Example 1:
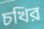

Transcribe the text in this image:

চখির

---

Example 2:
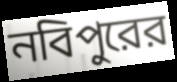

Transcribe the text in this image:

নবিপুরের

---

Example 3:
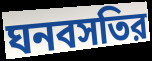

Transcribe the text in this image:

ঘনবসতির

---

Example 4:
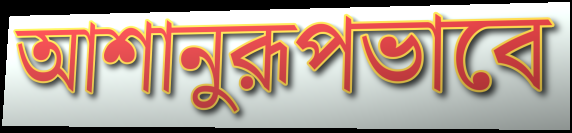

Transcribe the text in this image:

আশানুরূপভাবে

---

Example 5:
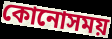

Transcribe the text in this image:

কোনোসময়